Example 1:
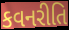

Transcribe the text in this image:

કવનરીતિ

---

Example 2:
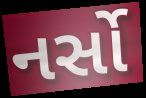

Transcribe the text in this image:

નર્સો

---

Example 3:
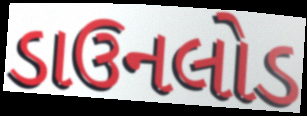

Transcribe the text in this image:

ડાઉનલોડ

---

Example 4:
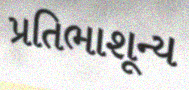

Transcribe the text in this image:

પ્રતિભાશૂન્ય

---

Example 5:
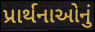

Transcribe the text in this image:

પ્રાર્થનાઓનું